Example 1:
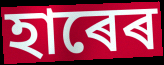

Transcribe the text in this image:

হাৰেৰ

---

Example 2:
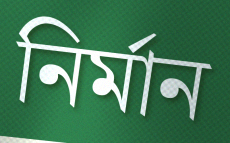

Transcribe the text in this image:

নিৰ্মান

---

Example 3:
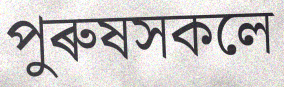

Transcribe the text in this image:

পুৰুষসকলে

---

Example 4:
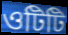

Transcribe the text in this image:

ওটিটি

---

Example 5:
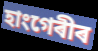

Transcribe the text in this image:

হাংগেৰীৰ